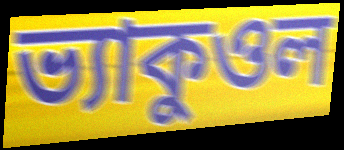
ভ্যাকুওল